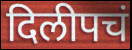
दिलीपचं